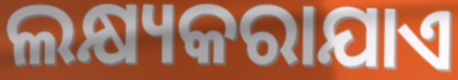
ଲକ୍ଷ୍ୟକରାଯାଏ